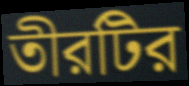
তীরটির